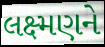
લક્ષ્મણને